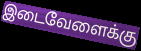
இடைவேளைக்கு